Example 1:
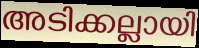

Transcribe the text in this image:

അടിക്കല്ലായി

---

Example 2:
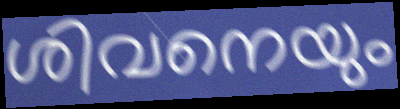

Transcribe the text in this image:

ശിവനെയും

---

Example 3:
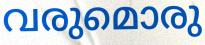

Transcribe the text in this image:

വരുമൊരു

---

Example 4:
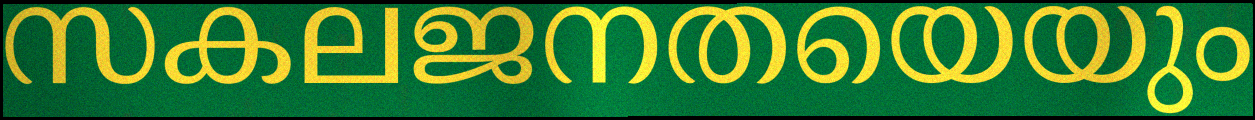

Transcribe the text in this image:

സകലജനതയെയും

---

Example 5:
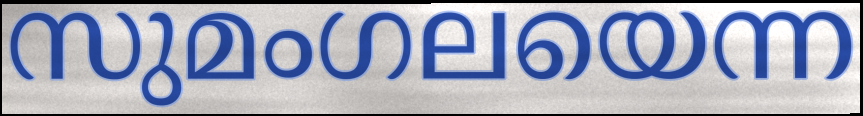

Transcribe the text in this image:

സുമംഗലയെന്ന